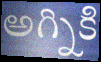
అగ్నికి